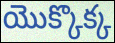
యొక్కొక్క